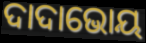
ଦାଦାଭୋୟ